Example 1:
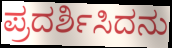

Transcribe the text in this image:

ಪ್ರದರ್ಶಿಸಿದನು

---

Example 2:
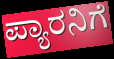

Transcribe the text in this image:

ಪ್ಯಾರನಿಗೆ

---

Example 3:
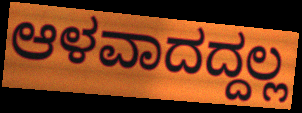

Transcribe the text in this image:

ಆಳವಾದದ್ದಲ್ಲ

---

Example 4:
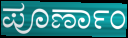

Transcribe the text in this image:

ಪೂರ್ಣಾಂ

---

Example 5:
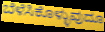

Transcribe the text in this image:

ಬೆಳೆಸಿಕೊಳ್ಳುವುದೂ